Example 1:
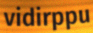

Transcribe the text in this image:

vidirppu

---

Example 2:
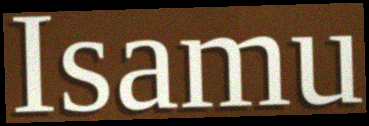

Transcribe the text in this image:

Isamu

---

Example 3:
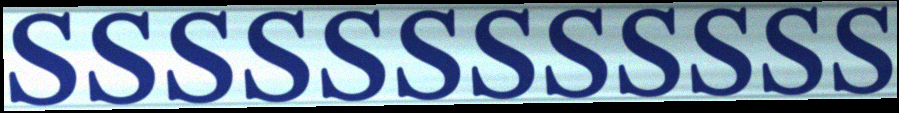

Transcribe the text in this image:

ssssssssssss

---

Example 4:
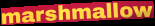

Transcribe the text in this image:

marshmallow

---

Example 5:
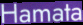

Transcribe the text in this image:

Hamata